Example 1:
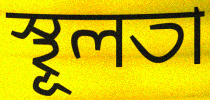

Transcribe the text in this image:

স্থূলতা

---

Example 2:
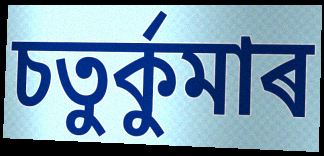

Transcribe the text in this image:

চতুৰ্কুমাৰ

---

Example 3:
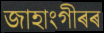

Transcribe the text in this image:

জাহাংগীৰৰ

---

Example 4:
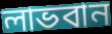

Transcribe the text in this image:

লাভবান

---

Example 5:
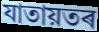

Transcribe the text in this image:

যাতায়তৰ